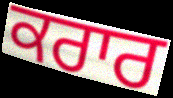
ਕਰਾਰ